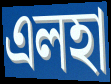
এলহা